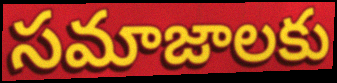
సమాజాలకు